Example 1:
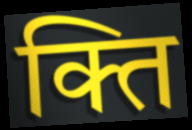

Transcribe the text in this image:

क्ति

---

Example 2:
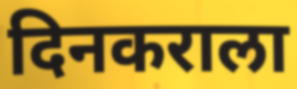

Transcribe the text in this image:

दिनकराला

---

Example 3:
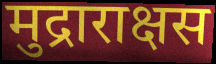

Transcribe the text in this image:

मुद्राराक्षस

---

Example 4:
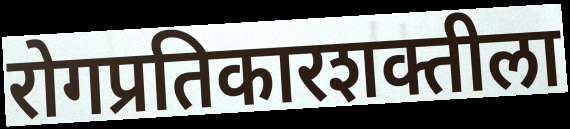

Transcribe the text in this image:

रोगप्रतिकारशक्तीला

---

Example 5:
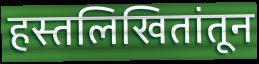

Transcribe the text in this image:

हस्तलिखितांतून